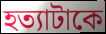
হত্যাটাকে